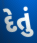
દેતું